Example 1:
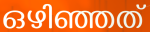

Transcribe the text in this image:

ഒഴിഞ്ഞത്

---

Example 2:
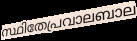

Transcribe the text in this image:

സ്ഥിതേപ്രവാലബാല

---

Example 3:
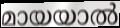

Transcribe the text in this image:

മായയാൽ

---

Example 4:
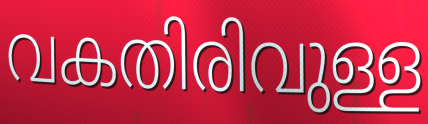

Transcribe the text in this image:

വകതിരിവുള്ള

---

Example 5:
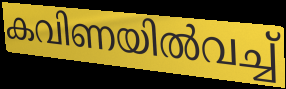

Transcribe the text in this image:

കവിണയിൽവച്ച്